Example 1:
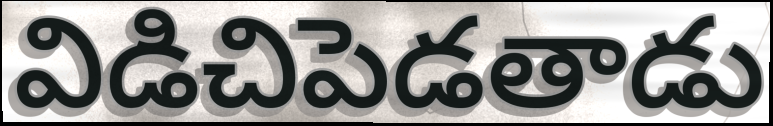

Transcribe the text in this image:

విడిచిపెడతాడు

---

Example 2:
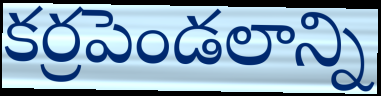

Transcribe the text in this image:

కర్రపెండలాన్ని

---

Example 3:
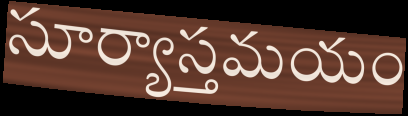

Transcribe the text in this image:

సూర్యాస్తమయం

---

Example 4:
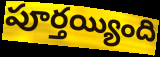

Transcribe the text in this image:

పూర్తయ్యింది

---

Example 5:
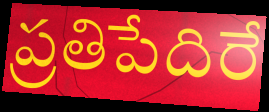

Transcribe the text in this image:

ప్రతిపేదిరే